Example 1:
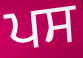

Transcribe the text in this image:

ਪਸ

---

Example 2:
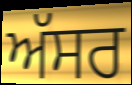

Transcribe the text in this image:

ਅੱਸਰ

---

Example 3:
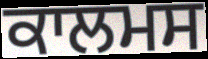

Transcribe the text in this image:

ਕਾਲਮਸ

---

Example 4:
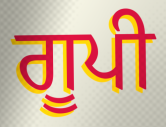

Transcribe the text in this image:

ਗੂਪੀ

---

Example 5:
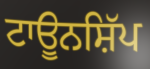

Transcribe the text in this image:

ਟਾਊਨਸ਼ਿੱਪ